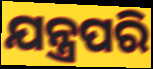
ଯନ୍ତ୍ରପରି